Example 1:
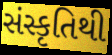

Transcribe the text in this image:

સંસ્કૃતિથી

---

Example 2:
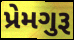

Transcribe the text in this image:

પ્રેમગુરૂ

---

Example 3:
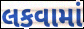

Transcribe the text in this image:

લકવામાં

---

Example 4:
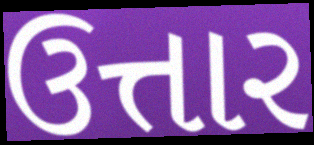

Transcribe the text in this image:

ઉત્તાર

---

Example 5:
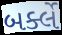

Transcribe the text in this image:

બર્ક્લે